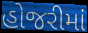
હોજરીમાં